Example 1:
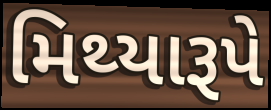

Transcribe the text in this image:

મિથ્યારૂપે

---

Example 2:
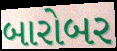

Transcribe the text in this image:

બારોબર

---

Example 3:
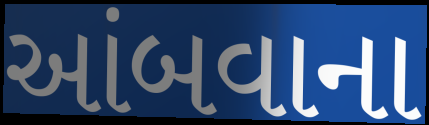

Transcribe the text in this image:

આંબવાના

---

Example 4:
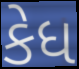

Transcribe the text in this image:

કેધ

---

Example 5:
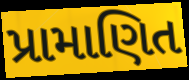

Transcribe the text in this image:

પ્રામાણિત